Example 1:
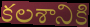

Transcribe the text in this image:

కలశానికి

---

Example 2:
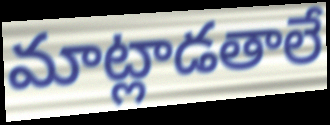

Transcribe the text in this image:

మాట్లాడతాలే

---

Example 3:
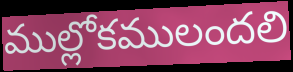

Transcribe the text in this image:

ముల్లోకములందలి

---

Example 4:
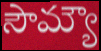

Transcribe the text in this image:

సౌమ్యౌ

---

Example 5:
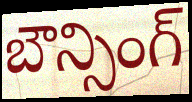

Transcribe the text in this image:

బౌన్సింగ్